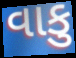
વાકુ